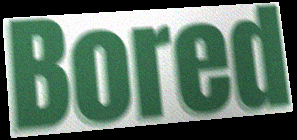
Bored